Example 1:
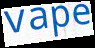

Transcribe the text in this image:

vape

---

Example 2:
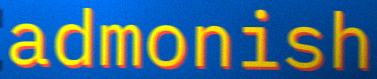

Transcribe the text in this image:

admonish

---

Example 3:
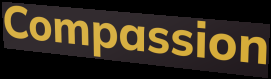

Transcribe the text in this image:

Compassion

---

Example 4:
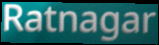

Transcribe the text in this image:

Ratnagar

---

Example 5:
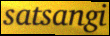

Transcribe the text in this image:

satsangi